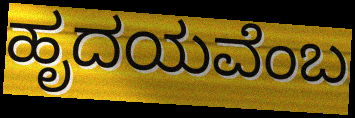
ಹೃದಯವೆಂಬ